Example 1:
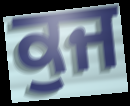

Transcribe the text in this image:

ਕੁਜ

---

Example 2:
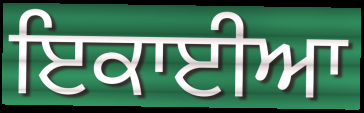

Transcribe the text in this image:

ਇਕਾਈਆ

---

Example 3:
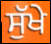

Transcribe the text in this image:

ਸੁੱਖੇ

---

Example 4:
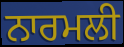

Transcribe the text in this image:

ਨਾਰਮਲੀ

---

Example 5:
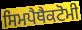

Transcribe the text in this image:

ਸਿਮਪੈਥੈਕਟੋਮੀ